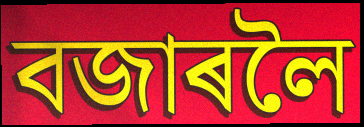
বজাৰলৈ